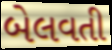
બેલવતી